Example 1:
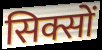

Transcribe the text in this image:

सिक्सों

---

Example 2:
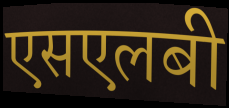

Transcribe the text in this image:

एसएलबी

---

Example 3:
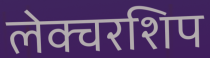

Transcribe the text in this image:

लेक्चरशिप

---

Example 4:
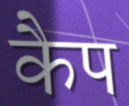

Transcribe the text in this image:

कैप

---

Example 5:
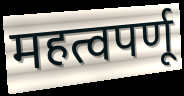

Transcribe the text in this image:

महत्‍वपर्णू